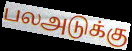
பலஅடுக்கு